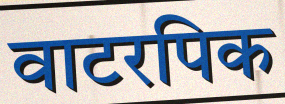
वाटरपिक